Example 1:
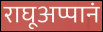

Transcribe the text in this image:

राघूअप्पानं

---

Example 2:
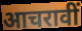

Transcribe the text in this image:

आचरावीं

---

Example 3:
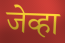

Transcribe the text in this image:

जेव्हा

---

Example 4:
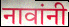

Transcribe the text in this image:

नावांनी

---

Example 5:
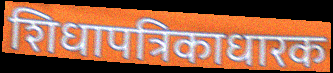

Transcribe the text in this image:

शिधापत्रिकाधारक